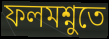
ফলমশ্নুতে